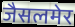
जैसलमेर